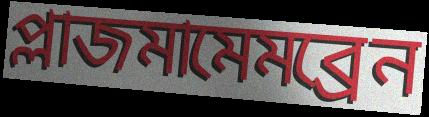
প্লাজমামেমব্রেন